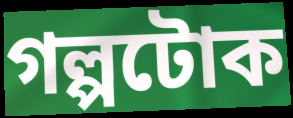
গল্পটোক